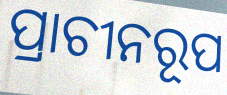
ପ୍ରାଚୀନରୂପ